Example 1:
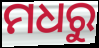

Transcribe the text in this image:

ମଧରୁ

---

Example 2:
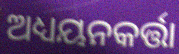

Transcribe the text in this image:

ଅଧ୍ୟୟନକର୍ତ୍ତା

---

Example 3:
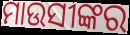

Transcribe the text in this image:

ମାଉସୀଙ୍କର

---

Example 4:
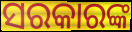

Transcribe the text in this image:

ସରକାରଙ୍କ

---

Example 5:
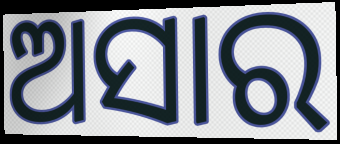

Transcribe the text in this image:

ଅସାର